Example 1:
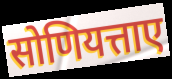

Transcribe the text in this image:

सोणियत्ताए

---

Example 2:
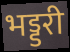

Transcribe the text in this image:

भड्डरी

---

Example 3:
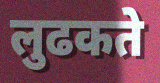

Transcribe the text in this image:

लुढकते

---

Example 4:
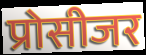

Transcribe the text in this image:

प्रोसीजर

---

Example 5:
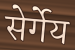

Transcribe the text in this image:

सेर्गेय